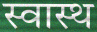
स्‍वास्‍थ